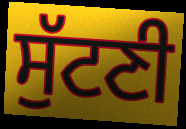
ਸੁੱਟਣੀ